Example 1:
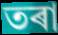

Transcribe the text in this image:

তৰা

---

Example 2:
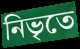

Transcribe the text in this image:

নিভৃতে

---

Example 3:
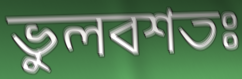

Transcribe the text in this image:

ভুলবশতঃ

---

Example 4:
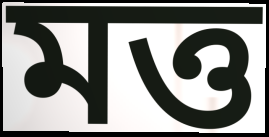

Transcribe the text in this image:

মত্ত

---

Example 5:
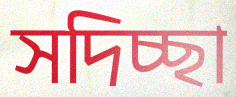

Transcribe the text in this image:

সদিচ্ছা